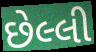
છેલ્લી